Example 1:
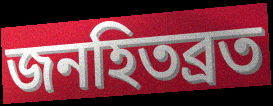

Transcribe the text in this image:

জনহিতব্রত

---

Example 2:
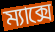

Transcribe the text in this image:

ম্যাক্সে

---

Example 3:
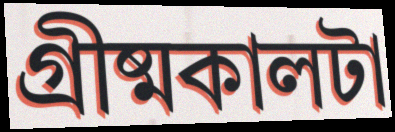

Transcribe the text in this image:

গ্রীষ্মকালটা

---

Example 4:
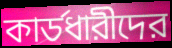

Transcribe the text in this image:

কার্ডধারীদের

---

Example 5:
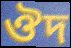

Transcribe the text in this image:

ঔদ